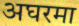
अघरमा